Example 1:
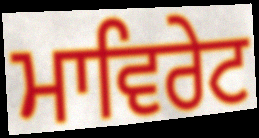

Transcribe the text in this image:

ਮਾਵਿਰੇਟ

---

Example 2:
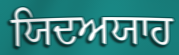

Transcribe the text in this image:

ਯਿਦਅਯਾਹ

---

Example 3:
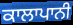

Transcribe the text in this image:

ਕਾਲਾਪਾਨੀ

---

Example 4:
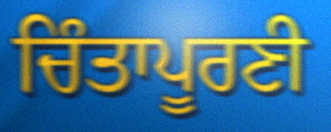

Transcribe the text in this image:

ਚਿੰਤਾਪੂਰਣੀ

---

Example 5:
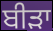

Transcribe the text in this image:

ਬੀੜਾ